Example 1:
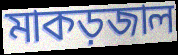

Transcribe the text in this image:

মাকড়জাল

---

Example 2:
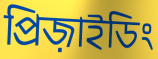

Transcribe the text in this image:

প্রিজ়াইডিং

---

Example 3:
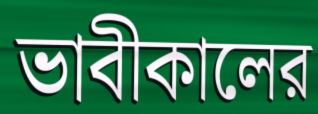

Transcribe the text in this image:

ভাবীকালের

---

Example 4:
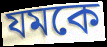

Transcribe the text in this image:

যমকে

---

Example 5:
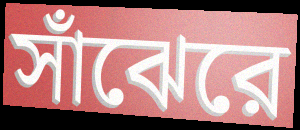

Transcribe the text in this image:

সাঁঝেরে